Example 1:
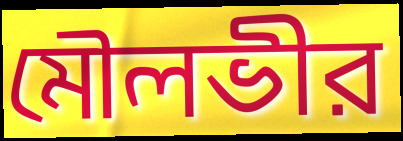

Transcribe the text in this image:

মৌলভীর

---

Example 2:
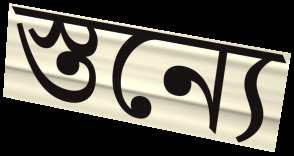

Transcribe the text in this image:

স্তন্যে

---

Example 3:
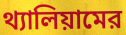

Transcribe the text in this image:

থ্যালিয়ামের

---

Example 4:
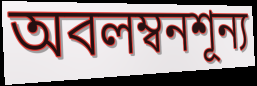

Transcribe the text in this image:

অবলম্বনশূন্য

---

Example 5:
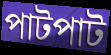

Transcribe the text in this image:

পাটপাট